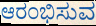
ಆರಂಭಿಸುವ